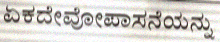
ಏಕದೇವೋಪಾಸನೆಯನ್ನು